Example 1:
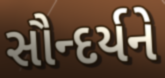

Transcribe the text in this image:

સૌન્દર્યને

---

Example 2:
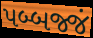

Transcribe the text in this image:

પબ્બજ્જં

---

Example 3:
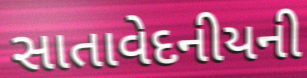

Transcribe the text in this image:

સાતાવેદનીયની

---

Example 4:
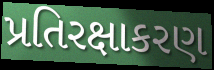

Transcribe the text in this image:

પ્રતિરક્ષાકરણ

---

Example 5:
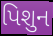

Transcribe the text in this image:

પિશુન